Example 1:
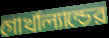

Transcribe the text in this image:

গোর্খাল্যান্ডের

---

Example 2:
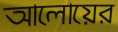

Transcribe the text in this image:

আলোয়ের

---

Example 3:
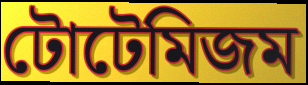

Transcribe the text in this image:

টোটেমিজম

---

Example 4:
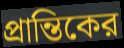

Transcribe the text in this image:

প্রান্তিকের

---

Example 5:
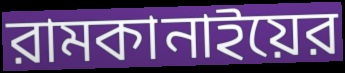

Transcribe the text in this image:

রামকানাইয়ের